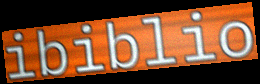
ibiblio